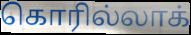
கொரில்லாக்